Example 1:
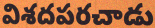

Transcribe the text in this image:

విశదపరచాడు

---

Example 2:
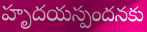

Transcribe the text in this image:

హృదయస్పందనకు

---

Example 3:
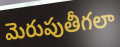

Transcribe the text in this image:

మెరుపుతీగలా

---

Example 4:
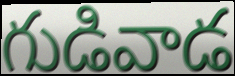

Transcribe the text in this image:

గుడివాడ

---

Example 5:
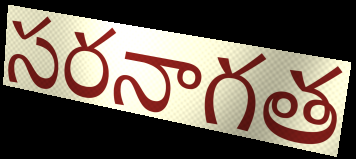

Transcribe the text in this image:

సరనాగత